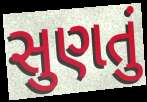
સુણતું